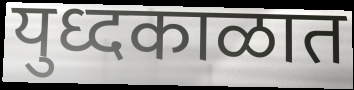
युध्दकाळात